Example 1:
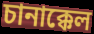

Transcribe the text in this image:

চানাক্কেল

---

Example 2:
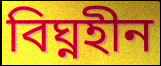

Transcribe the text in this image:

বিঘ্নহীন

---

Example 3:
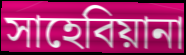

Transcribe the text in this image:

সাহেবিয়ানা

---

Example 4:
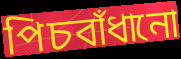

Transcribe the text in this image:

পিচবাঁধানো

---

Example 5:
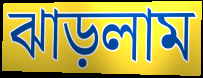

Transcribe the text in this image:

ঝাড়লাম